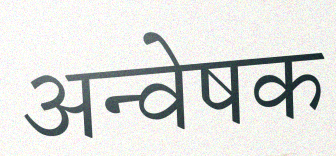
अन्वेषक